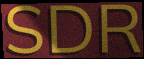
SDR